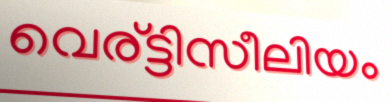
വെര്ട്ടിസീലിയം